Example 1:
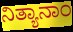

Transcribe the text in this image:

ನಿತ್ಯಾನಾಂ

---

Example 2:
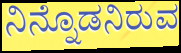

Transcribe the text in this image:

ನಿನ್ನೊಡನಿರುವ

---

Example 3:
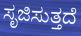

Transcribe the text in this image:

ಸೃಜಿಸುತ್ತದೆ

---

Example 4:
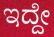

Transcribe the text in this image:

ಇದ್ದೇ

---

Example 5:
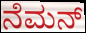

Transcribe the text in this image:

ನೆಮನ್